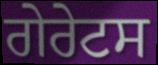
ਗੇਰੇਟਸ